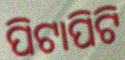
ପିଟାପିଟି